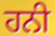
ਹਨੀ